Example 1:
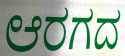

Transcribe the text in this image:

ಆರಗದ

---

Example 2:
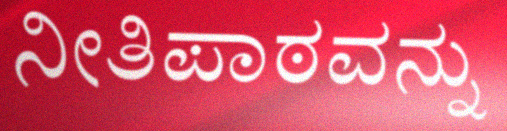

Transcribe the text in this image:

ನೀತಿಪಾಠವನ್ನು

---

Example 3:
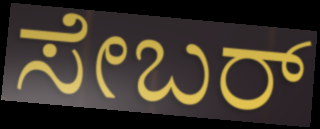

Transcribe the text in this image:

ಸೇಬರ್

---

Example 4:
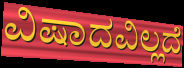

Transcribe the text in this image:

ವಿಷಾದವಿಲ್ಲದೆ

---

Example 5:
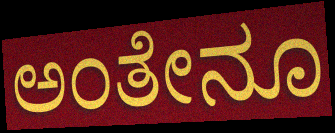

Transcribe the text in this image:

ಅಂತೇನೂ